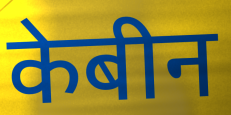
केबीन